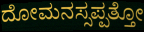
ದೋಮನಸ್ಸಪ್ಪತ್ತೋ